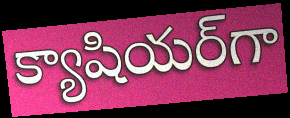
క్యాషియర్‌గా